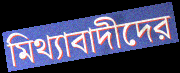
মিথ্যাবাদীদের